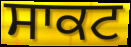
ਸਾਕਟ